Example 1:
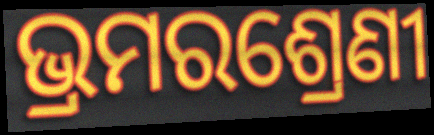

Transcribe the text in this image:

ଭ୍ରମରଶ୍ରେଣୀ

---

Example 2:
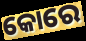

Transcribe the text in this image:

କୋରେ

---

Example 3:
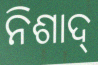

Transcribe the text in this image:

ନିଶାଦ୍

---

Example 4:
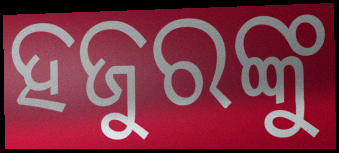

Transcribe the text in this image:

ହଜୁରଙ୍କୁ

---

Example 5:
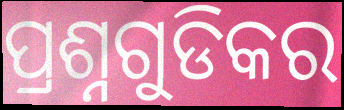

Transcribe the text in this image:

ପ୍ରଶ୍ନଗୁଡିକର